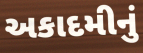
અકાદમીનું